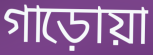
গাড়োয়া